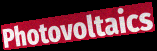
Photovoltaics